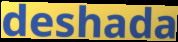
deshada